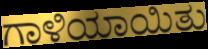
ಗಾಳಿಯಾಯಿತು